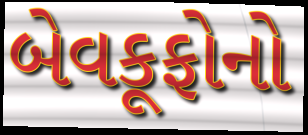
બેવકૂફોનો